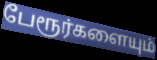
பேரூர்களையும்